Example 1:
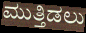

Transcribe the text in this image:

ಮುತ್ತಿಡಲು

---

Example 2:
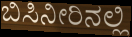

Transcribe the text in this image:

ಬಿಸಿನೀರಿನಲ್ಲಿ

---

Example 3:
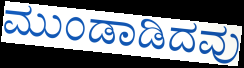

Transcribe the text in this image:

ಮುಂಡಾಡಿದವು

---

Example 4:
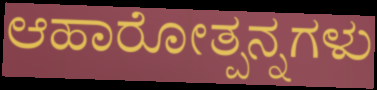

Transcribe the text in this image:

ಆಹಾರೋತ್ಪನ್ನಗಳು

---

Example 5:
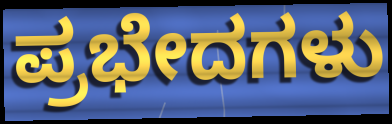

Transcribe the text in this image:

ಪ್ರಭೇದಗಳು